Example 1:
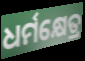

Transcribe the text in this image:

ଧର୍ମକ୍ଷେତ୍ର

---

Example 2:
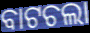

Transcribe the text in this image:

ବାଟଚଲା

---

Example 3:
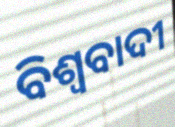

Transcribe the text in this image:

ବିଶ୍ଵବାଦୀ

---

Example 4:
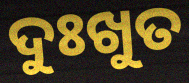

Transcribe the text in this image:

ଦୁଃଖୁତ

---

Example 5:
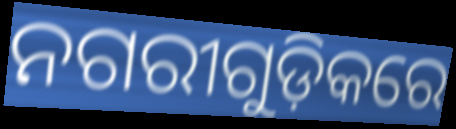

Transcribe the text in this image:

ନଗରୀଗୁଡ଼ିକରେ